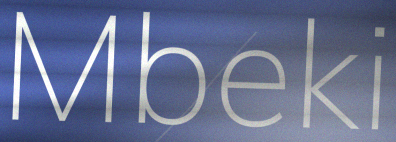
Mbeki